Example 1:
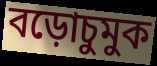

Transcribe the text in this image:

বড়োচুমুক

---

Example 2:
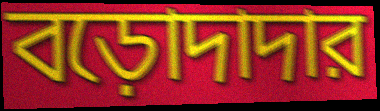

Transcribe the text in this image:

বড়োদাদার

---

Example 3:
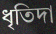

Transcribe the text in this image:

ধৃতিদা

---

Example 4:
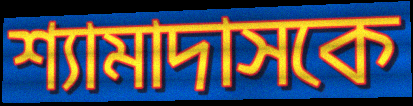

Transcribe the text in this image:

শ্যামাদাসকে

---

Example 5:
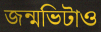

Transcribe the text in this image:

জন্মভিটাও